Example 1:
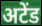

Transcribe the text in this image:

अटेंड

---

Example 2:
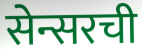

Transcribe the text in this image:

सेन्सरची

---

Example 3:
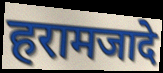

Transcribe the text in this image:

हरामजादे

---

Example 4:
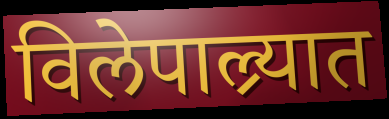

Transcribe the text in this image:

विलेपाल्र्यात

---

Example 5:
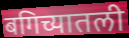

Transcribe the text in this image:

बगिच्यातली